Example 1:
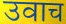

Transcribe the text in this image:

उवाच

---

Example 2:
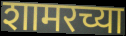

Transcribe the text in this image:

शामरच्या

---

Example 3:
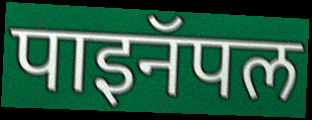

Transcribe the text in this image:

पाइनॅपल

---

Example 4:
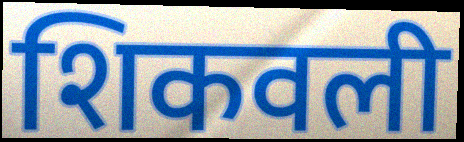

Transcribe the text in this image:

शिकवली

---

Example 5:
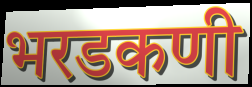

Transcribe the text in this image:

भरडकणी